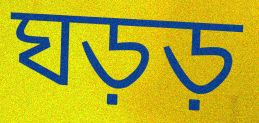
ঘড়ড়